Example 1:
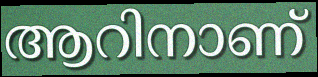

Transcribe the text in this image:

ആറിനാണ്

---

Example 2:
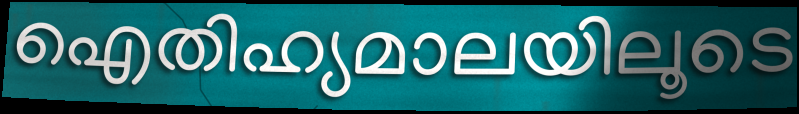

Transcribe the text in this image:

ഐതിഹ്യമാലയിലൂടെ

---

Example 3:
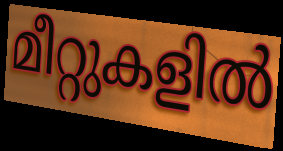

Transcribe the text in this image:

മീറ്റുകളിൽ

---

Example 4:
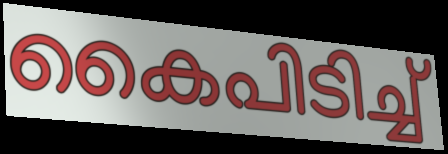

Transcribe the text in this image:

കൈപിടിച്ച്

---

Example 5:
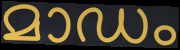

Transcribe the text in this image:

മാഡം